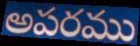
అపరము